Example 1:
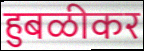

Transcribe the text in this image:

हुबळीकर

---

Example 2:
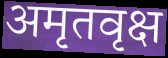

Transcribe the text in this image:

अमृतवृक्ष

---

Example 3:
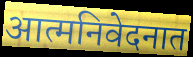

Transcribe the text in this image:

आत्मनिवेदनात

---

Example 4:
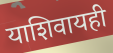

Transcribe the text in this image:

याशिवायही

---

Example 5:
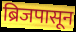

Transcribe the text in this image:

ब्रिजपासून